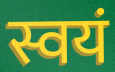
स्वयं